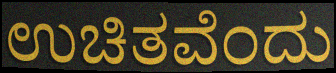
ಉಚಿತವೆಂದು